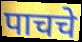
पाचचे